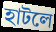
হাটলে